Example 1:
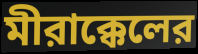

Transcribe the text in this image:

মীরাক্কেলের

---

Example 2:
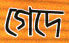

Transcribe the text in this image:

গেদে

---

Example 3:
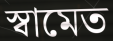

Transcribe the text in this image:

স্বামেত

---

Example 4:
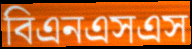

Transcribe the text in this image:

বিএনএসএস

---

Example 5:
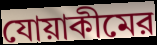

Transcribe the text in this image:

যোয়াকীমের